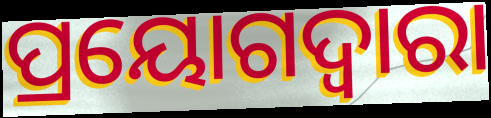
ପ୍ରୟୋଗଦ୍ଵାରା